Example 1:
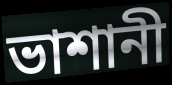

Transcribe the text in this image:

ভাশানী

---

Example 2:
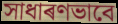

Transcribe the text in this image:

সাধাৰণভাবে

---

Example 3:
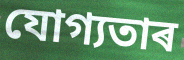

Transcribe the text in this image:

যোগ্যতাৰ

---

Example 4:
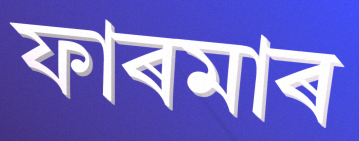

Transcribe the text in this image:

ফাৰমাৰ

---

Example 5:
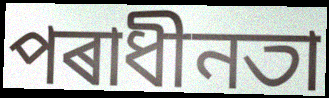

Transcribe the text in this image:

পৰাধীনতা